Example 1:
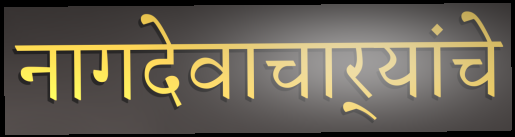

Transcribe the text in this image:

नागदेवाचार्यांचे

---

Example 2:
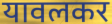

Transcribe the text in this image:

यावलकर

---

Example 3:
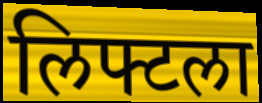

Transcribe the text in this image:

लिफ्टला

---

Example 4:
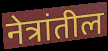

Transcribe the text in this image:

नेत्रांतील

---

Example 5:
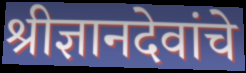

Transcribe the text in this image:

श्रीज्ञानदेवांचे